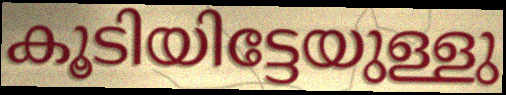
കൂടിയിട്ടേയുള്ളു